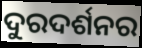
ଦୁରଦର୍ଶନର